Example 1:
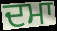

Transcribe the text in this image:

ਦਮਾ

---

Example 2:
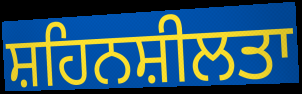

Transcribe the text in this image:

ਸ਼ਹਿਨਸ਼ੀਲਤਾ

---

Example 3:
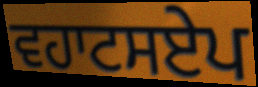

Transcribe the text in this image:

ਵਹਾਟਸਏਪ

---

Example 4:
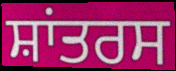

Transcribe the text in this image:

ਸ਼ਾਂਤਰਸ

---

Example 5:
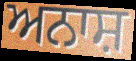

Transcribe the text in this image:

ਅਨਾਸ਼